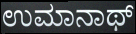
ಉಮಾನಾಥ್